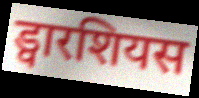
ड्वारशियस